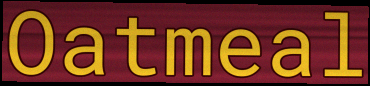
Oatmeal